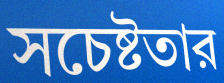
সচেষ্টতার